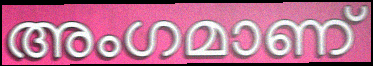
അംഗമാണ്